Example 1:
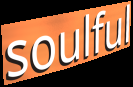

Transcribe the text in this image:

soulful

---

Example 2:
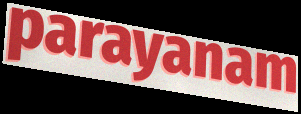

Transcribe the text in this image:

parayanam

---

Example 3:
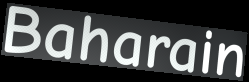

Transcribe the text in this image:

Baharain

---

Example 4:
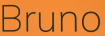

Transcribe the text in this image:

Bruno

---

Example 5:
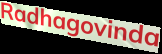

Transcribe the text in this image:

Radhagovinda